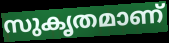
സുകൃതമാണ്